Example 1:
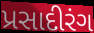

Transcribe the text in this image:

પ્રસાદીરંગ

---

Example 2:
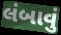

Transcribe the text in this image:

લંબાવું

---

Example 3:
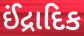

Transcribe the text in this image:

ઈંદ્રાદિક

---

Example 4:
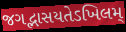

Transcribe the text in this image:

જગદ્ભાસયતેઽખિલમ્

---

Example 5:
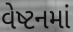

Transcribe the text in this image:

વેષ્ટનમાં